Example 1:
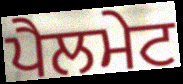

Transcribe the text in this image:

ਪੈਲਮੇਟ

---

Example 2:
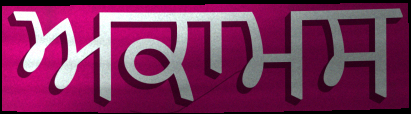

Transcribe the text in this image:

ਅਕਾਮਸ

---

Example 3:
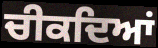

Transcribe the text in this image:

ਚੀਕਦਿਆਂ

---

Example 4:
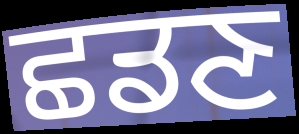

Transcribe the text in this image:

ਛਡਣ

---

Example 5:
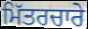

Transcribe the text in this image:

ਮਿੱਤਰਚਾਰੇ